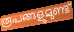
രൂപങ്ങളുമുണ്ട്